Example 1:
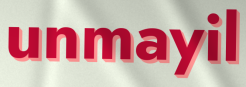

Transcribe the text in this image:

unmayil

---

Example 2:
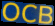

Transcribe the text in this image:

OCB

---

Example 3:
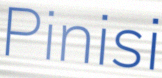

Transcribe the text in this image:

Pinisi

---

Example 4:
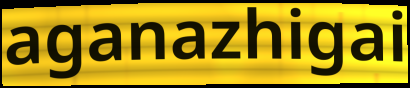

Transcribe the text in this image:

aganazhigai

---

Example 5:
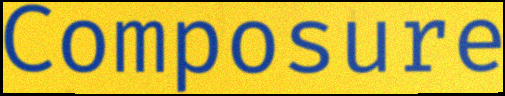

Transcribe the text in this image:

Composure